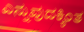
ಎನ್ನುವುದಕ್ಕಿಂತ